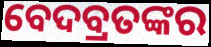
ବେଦବ୍ରତଙ୍କର